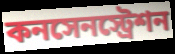
কনসেনস্ট্রেশন